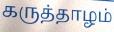
கருத்தாழம்